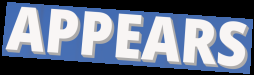
APPEARS